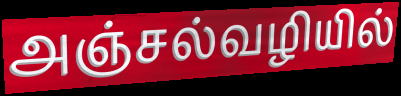
அஞ்சல்வழியில்